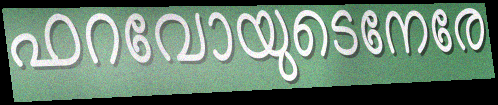
ഫറവോയുടെനേരേ